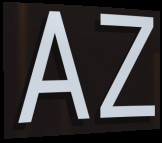
AZ